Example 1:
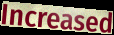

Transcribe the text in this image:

Increased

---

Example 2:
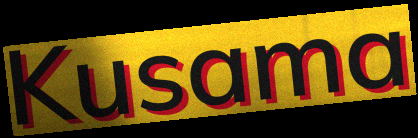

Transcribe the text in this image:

Kusama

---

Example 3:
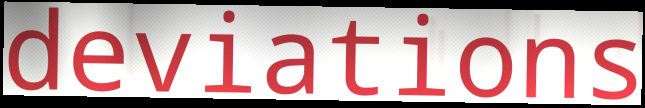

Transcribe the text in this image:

deviations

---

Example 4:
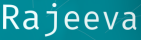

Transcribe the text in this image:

Rajeeva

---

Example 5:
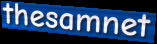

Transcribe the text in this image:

thesamnet